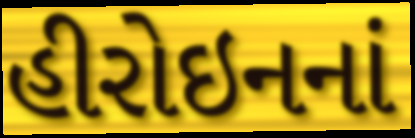
હીરોઇનનાં